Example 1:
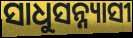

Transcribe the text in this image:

ସାଧୁସନ୍ନ୍ୟାସୀ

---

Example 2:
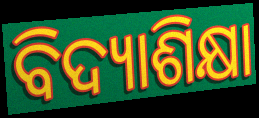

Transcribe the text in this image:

ବିଦ୍ୟାଶିକ୍ଷା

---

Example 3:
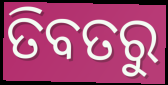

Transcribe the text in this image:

ତିବତରୁ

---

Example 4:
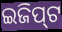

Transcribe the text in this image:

ଇଜିପ୍‌ଟ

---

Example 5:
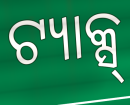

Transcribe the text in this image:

ଟ୍ୟାକ୍ସ୍